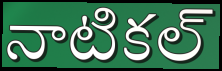
నాటికల్